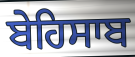
ਬੇਹਿਸਾਬ